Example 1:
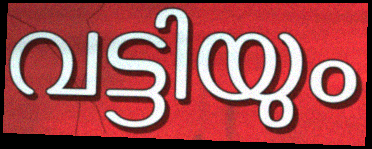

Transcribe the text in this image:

വട്ടിയും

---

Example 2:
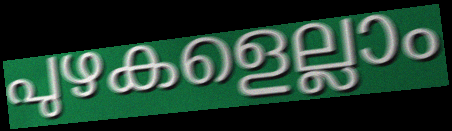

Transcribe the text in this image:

പുഴകളെല്ലാം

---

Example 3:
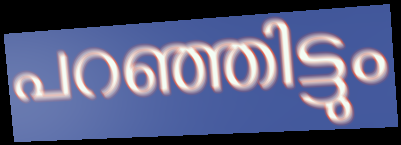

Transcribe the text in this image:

പറഞ്ഞിട്ടും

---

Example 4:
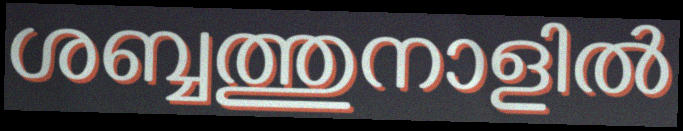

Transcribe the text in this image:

ശബ്ബത്തുനാളിൽ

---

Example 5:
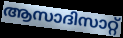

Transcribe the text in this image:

ആസാദിസാറ്റ്